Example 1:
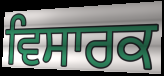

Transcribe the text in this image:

ਵਿਸਾਰਕ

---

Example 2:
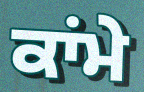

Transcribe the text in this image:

ਕਾਂਮੇ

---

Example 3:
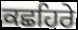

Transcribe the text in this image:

ਕਛਹਿਰੇ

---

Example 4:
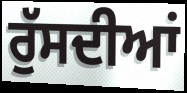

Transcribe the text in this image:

ਰੁੱਸਦੀਆਂ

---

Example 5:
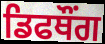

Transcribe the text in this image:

ਡਿਫਥੌਂਗ